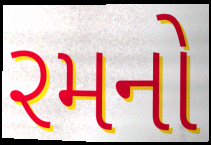
રમનો